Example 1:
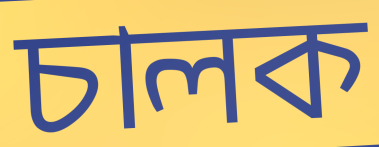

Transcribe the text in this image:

চালক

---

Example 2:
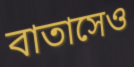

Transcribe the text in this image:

বাতাসেও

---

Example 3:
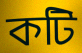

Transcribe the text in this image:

কটি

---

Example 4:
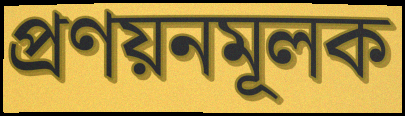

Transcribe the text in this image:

প্রণয়নমূলক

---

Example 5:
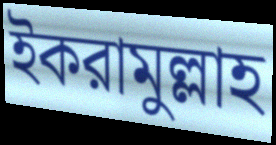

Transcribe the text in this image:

ইকরামুল্লাহ